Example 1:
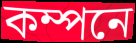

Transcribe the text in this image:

কম্পনে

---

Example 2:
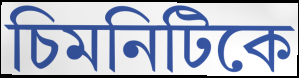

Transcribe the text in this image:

চিমনিটিকে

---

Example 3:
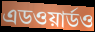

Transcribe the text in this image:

এডওয়ার্ডও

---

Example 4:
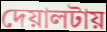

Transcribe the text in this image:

দেয়ালটায়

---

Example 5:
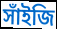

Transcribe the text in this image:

সাঁইজি